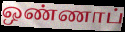
ஒண்ணாப்